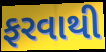
ફરવાથી